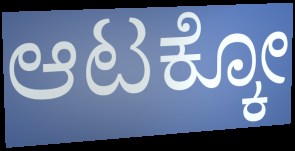
ಆಟಕ್ಕೋ